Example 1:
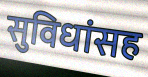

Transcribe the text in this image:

सुविधांसह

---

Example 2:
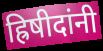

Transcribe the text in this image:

ह्रिषीदांनी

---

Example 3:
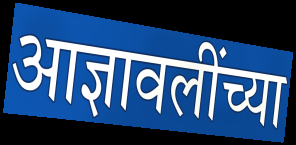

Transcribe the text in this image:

आज्ञावलींच्या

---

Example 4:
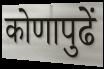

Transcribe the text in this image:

कोणापुढें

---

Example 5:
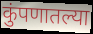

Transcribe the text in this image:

कुंपणातल्या